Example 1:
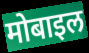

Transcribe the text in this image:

मोबाइल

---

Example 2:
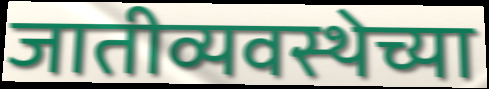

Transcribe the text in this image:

जातीव्यवस्थेच्या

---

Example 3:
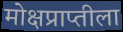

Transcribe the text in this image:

मोक्षप्राप्तीला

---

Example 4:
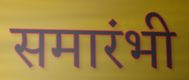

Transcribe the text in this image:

समारंभी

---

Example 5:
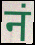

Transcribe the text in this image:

नं